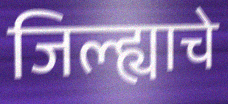
जिल्ह्याचे